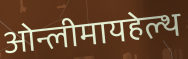
ओन्लीमायहेल्थ